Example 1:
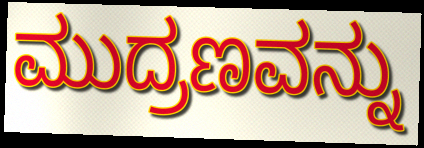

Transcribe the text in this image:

ಮುದ್ರಣವನ್ನು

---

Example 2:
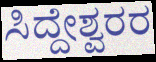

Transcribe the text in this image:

ಸಿದ್ದೇಶ್ವರರ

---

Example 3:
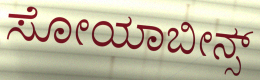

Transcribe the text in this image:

ಸೋಯಾಬೀನ್ಸ್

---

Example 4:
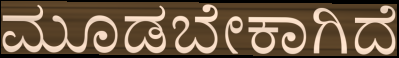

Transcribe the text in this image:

ಮೂಡಬೇಕಾಗಿದೆ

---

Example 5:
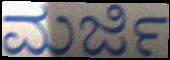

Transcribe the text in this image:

ಮರ್ಜಿ